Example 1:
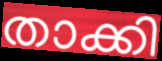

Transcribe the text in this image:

താക്കി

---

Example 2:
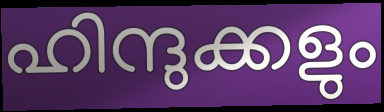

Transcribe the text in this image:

ഹിന്ദുക്കളും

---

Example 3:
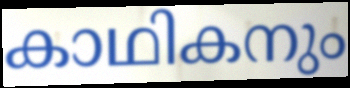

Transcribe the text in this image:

കാഥികനും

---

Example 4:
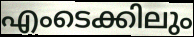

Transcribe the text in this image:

എംടെക്കിലും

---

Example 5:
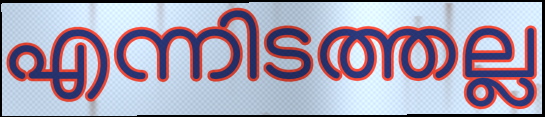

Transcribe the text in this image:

എന്നിടത്തല്ല